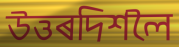
উত্তৰদিশলৈ